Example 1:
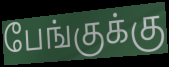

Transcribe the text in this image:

பேங்குக்கு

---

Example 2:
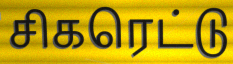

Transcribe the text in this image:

சிகரெட்டு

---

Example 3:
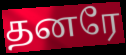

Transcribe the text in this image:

தனரே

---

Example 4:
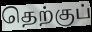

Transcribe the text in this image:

தெற்குப்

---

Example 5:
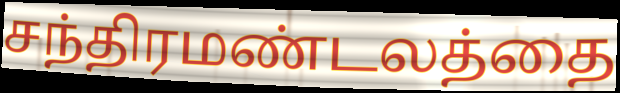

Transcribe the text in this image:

சந்திரமண்டலத்தை